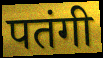
पतंगी